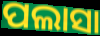
ପଲାସା